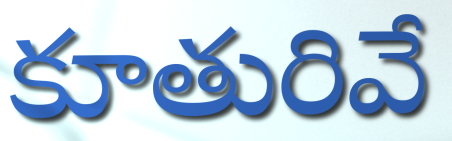
కూతురివే